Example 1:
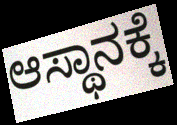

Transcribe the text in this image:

ಆಸ್ಥಾನಕ್ಕೆ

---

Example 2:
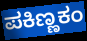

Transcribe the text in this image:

ಪಕಿಣ್ಣಕಂ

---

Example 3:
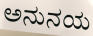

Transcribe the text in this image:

ಅನುನಯ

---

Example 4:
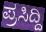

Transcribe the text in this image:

ಪ್ರಸಿದ್ದಿ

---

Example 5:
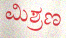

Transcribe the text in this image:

ಮಿಶ್ರಣ